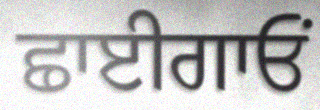
ਛਾਈਗਾਓਂ